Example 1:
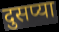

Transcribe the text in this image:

दुसप्या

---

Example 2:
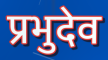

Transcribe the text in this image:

प्रभुदेव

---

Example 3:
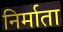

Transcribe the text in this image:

निर्माता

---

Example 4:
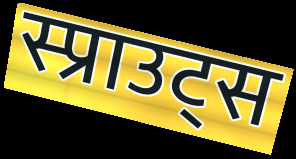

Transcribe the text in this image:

स्प्राउट्स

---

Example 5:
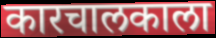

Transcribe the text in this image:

कारचालकाला